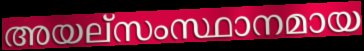
അയല്സംസ്ഥാനമായ